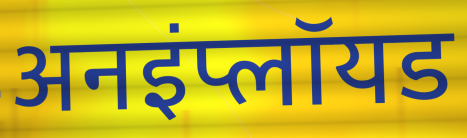
अनइंप्लॉयड